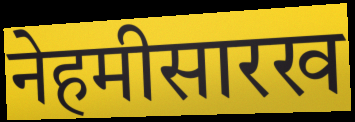
नेहमीसारख